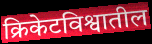
क्रिकेटविश्वातील